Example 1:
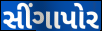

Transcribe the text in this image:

સીંગાપોર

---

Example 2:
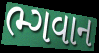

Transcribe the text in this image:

ભ્ગવાન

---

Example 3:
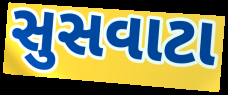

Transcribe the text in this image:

સુસવાટા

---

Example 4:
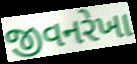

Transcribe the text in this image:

જીવનરેખા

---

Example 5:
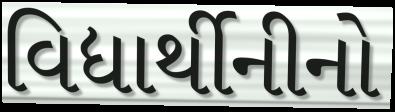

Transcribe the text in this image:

વિદ્યાર્થીનીનો